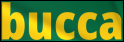
bucca